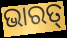
ଭାରତ୍